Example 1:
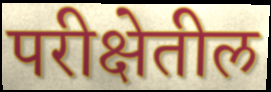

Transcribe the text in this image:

परीक्षेतील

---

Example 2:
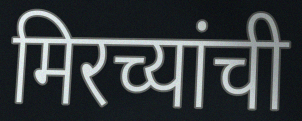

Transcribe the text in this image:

मिरच्यांची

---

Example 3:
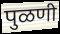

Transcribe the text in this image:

पुळणी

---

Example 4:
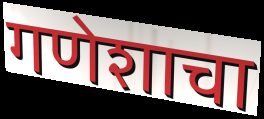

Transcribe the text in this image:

गणेशाचा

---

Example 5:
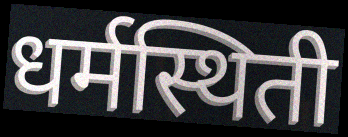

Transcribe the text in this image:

धर्मस्थिती